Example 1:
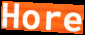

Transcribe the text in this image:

Hore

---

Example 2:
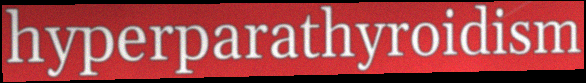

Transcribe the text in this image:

hyperparathyroidism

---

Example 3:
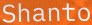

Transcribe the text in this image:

Shanto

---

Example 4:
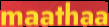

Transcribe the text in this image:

maathaa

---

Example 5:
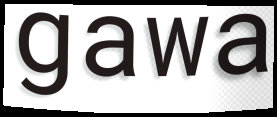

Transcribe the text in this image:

gawa